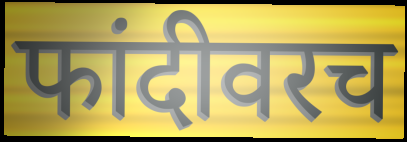
फांदीवरच